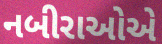
નબીરાઓએ